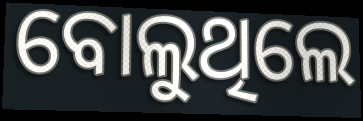
ବୋଲୁଥିଲେ